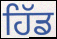
ਹਿੱਡ